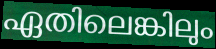
ഏതിലെങ്കിലും